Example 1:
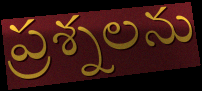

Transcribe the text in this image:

ప్రశ్నలను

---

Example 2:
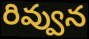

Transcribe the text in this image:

రివ్వున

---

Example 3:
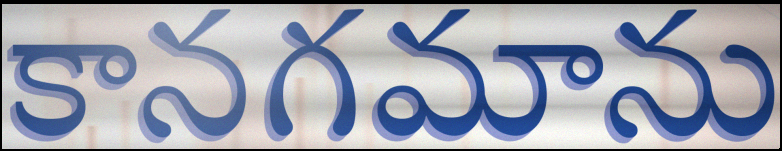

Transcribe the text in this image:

కానగమాను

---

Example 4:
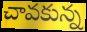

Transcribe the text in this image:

చావకున్న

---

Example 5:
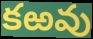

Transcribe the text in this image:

కఱవు